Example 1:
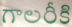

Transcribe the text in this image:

గాలరీకి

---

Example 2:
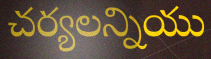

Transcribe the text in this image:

చర్యలన్నియు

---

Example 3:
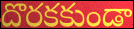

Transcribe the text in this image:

దొరకకుండా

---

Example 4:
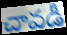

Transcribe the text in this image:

చావడీ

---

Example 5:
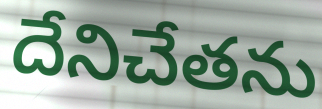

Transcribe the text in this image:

దేనిచేతను